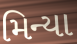
મિન્યા